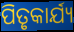
ପିତୃକାର୍ଯ୍ୟ